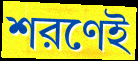
শরণেই